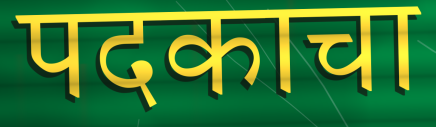
पदकाचा